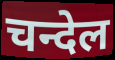
चन्देल